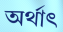
অর্থাৎ